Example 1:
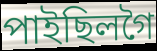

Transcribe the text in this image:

পাইছিলগৈ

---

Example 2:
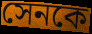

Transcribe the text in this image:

সেনকে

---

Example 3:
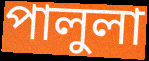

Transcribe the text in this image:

পালুলা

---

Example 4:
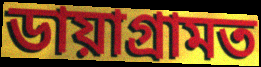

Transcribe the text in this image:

ডায়াগ্ৰামত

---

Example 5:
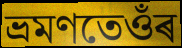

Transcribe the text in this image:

ভ্ৰমণতেওঁৰ